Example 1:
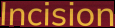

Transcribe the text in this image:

Incision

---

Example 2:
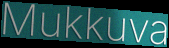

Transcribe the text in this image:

Mukkuva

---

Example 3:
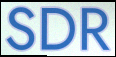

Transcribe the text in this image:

SDR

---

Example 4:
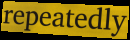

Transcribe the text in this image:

repeatedly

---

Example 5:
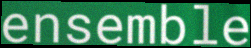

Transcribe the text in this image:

ensemble